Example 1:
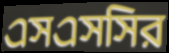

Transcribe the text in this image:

এসএসসির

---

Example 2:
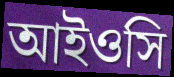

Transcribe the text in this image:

আইওসি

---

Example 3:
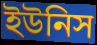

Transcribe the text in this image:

ইউনিস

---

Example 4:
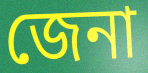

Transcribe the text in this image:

জেনা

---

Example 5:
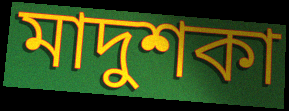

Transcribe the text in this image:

মাদুশকা